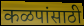
कळपांसाठी